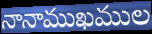
నానాముఖముల